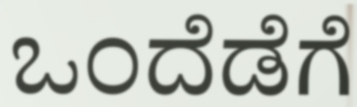
ಒಂದೆಡೆಗೆ